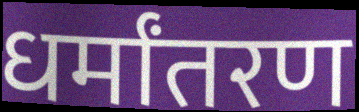
धर्मांतरण